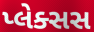
પ્લેક્સસ